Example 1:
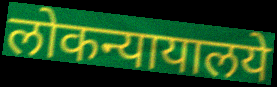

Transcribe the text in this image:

लोकन्यायालये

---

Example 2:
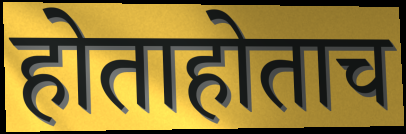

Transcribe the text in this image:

होताहोताच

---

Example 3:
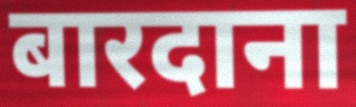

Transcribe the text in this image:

बारदाना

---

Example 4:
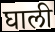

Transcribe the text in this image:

घाली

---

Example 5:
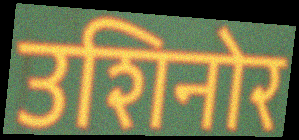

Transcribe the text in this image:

उशिनोर